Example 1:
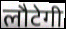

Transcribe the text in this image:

लौटेगी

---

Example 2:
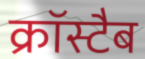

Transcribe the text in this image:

क्रॉस्टैब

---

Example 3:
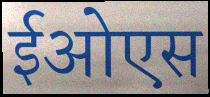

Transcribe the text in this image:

ईओएस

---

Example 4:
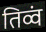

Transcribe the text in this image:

तिव्वं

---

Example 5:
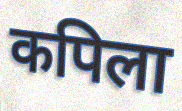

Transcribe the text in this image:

कपिला